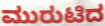
ಮುರುಟಿದ